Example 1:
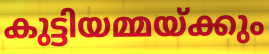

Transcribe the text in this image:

കുട്ടിയമ്മയ്ക്കും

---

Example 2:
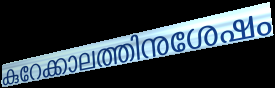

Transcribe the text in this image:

കുറേക്കാലത്തിനുശേഷം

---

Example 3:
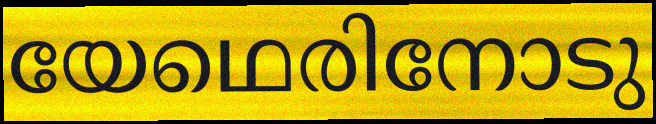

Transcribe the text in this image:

യേഥെരിനോടു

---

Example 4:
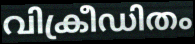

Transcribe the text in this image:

വിക്രീഡിതം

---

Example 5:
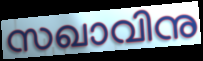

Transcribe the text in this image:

സഖാവിനു